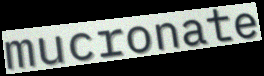
mucronate